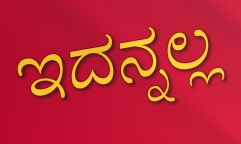
ಇದನ್ನಲ್ಲ